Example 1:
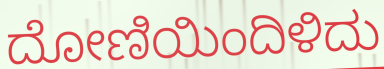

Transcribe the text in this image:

ದೋಣಿಯಿಂದಿಳಿದು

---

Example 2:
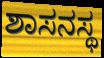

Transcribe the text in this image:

ಶಾಸನಸ್ಥ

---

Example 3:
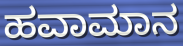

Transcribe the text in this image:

ಹವಾಮಾನ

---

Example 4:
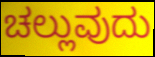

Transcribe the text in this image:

ಚಲ್ಲುವುದು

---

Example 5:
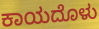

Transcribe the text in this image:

ಕಾಯದೊಳು